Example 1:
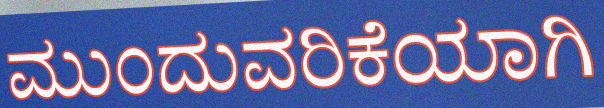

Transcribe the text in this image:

ಮುಂದುವರಿಕೆಯಾಗಿ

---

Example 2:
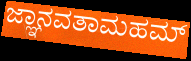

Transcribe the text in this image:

ಜ್ಞಾನವತಾಮಹಮ್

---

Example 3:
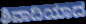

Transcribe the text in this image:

ಶಿವಾದಿಯಾದ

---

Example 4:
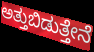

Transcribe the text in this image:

ಅತ್ತುಬಿಡುತ್ತೇನೆ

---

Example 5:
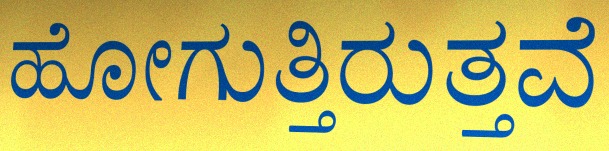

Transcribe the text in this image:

ಹೋಗುತ್ತಿರುತ್ತವೆ